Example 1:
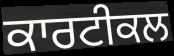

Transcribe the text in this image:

ਕਾਰਟੀਕਲ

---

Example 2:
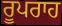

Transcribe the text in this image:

ਰੂਪਰਾਹ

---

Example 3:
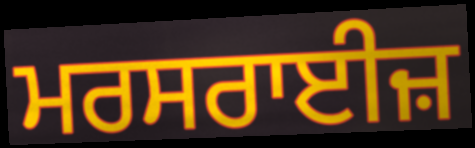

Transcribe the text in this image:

ਮਰਸਰਾਈਜ਼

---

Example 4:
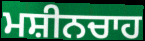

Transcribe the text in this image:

ਮਸ਼ੀਨਚਾਹ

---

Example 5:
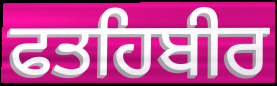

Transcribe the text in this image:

ਫਤਹਿਬੀਰ